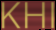
KHI